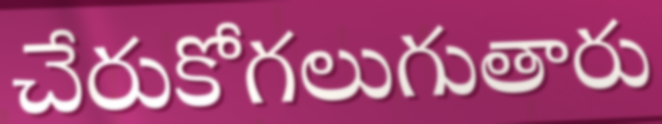
చేరుకోగలుగుతారు